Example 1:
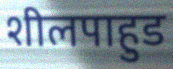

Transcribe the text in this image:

शीलपाहुड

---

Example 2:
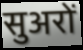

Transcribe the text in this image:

सुअरों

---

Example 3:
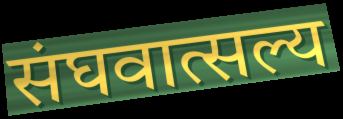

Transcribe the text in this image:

संघवात्सल्य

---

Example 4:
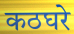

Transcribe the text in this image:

कठघरे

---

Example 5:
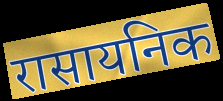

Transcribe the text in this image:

रासायनिक